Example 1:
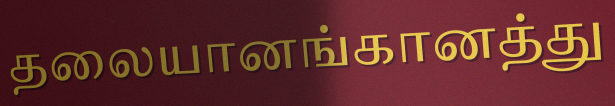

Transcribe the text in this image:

தலையானங்கானத்து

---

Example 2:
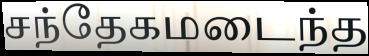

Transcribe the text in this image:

சந்தேகமடைந்த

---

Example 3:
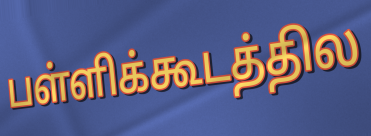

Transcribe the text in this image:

பள்ளிக்கூடத்தில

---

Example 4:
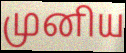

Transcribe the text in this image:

முனிய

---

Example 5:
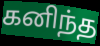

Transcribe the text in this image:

கனிந்த